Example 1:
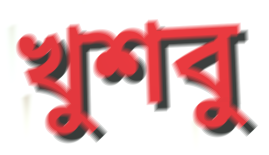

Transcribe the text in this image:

খুশবু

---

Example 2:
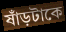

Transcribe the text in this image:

ষাঁড়টাকে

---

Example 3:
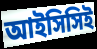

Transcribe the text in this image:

আইসিসিই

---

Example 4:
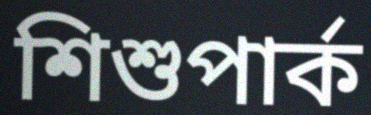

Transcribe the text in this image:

শিশুপার্ক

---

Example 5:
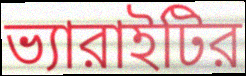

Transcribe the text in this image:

ভ্যারাইটির